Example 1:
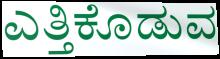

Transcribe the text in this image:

ಎತ್ತಿಕೊಡುವ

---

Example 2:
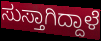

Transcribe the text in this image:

ಸುಸ್ತಾಗಿದ್ದಾಳೆ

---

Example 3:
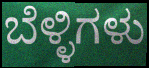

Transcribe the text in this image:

ಬೆಳ್ಳಿಗಳು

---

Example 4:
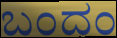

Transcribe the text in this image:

ಬಂದಂ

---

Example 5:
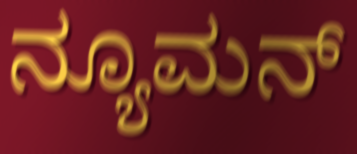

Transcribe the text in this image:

ನ್ಯೂಮನ್